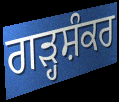
ਗੜ੍ਹਸ਼ੰਕਰ